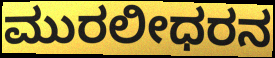
ಮುರಲೀಧರನ